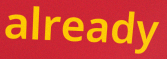
already